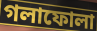
গলাফোলা